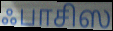
ஃபாசிஸ